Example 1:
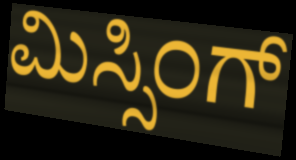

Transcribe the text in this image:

ಮಿಸ್ಸಿಂಗ್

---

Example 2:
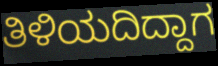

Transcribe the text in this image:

ತಿಳಿಯದಿದ್ದಾಗ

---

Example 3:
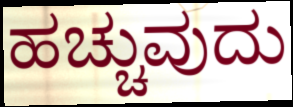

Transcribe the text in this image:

ಹಚ್ಚುವುದು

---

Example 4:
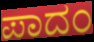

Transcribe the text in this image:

ಪಾದಂ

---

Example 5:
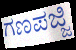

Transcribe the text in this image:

ಗಣಪಜ್ಜಿ